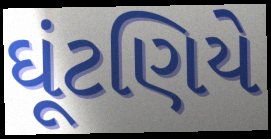
ઘૂંટણિયે